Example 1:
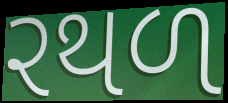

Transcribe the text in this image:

રથળ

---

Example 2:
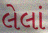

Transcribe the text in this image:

લેલાં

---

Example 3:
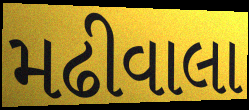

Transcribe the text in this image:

મઢીવાલા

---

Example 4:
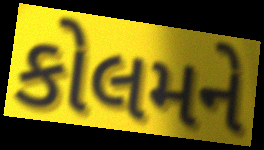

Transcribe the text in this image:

કોલમને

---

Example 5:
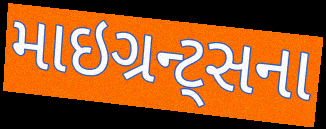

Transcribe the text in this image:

માઇગ્રન્ટ્સના